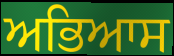
ਅਭਿਆਸ